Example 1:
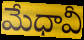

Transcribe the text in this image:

మేధావీ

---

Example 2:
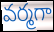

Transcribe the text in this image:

వర్మగా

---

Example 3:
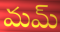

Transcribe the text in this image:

మమ్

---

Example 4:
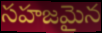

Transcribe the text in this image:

సహజమైన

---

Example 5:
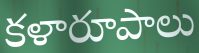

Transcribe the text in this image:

కళారూపాలు